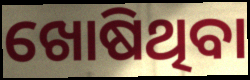
ଖୋଷିଥିବା